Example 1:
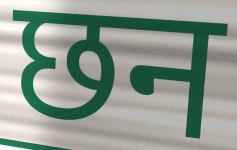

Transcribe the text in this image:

छन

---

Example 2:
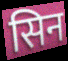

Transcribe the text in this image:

सिन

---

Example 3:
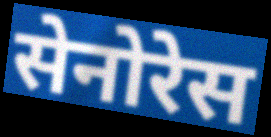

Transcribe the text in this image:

सेनोरेस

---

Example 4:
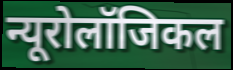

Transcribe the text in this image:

न्यूरोलॉजिकल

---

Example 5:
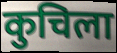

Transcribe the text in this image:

कुचिला